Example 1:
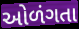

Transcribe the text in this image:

ઓળંગતા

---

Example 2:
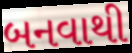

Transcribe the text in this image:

બનવાથી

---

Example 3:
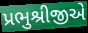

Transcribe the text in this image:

પ્રભુશ્રીજીએ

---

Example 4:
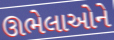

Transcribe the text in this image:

ઊભેલાઓને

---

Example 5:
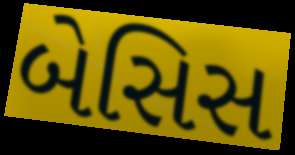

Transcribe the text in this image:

બેસિસ